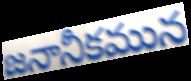
జనానీకమున